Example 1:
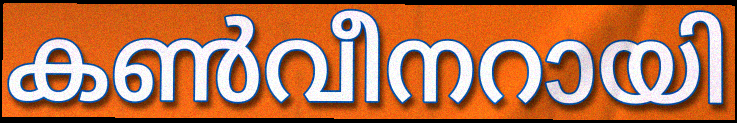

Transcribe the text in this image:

കൺവീനറായി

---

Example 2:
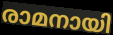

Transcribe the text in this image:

രാമനായി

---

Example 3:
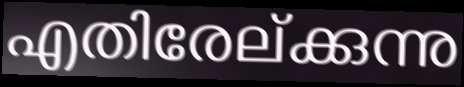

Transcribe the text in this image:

എതിരേല്ക്കുന്നു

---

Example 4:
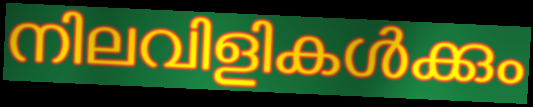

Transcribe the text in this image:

നിലവിളികൾക്കും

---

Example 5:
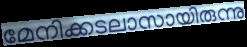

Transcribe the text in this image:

മേനിക്കടലാസായിരുന്നു